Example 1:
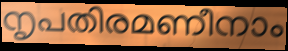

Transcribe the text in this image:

നൃപതിരമണീനാം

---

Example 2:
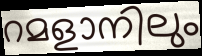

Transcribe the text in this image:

റമളാനിലും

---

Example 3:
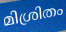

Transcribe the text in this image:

മിശ്രിതം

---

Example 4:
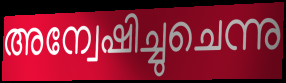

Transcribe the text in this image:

അന്വേഷിച്ചുചെന്നു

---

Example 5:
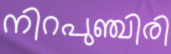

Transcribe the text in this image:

നിറപുഞ്ചിരി